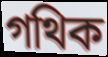
গথিক